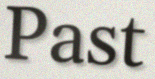
Past